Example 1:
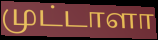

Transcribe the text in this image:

முட்டாளா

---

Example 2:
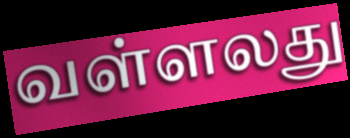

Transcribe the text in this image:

வள்ளலது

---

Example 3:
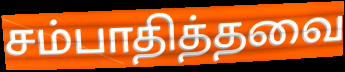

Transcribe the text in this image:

சம்பாதித்தவை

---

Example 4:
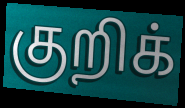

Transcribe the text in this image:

குறிக்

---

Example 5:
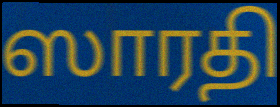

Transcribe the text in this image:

ஸாரதி